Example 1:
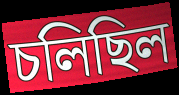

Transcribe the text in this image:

চলিছিল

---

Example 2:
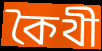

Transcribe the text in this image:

কৈথী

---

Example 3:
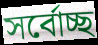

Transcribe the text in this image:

সৰ্বোচ্ছ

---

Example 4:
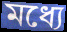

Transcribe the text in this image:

মধ্যে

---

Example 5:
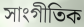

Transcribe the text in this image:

সাংগীতিক